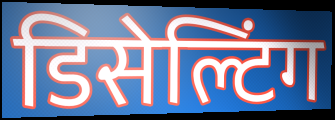
डिसेल्टिंग